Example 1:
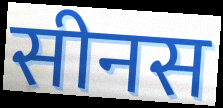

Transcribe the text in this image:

सीनस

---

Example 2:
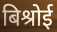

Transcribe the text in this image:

बिश्रोई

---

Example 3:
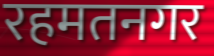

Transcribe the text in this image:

रहमतनगर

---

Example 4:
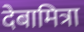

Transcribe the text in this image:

देबामित्रा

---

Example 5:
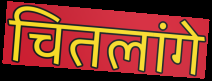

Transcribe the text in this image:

चितलांगे